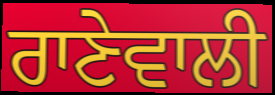
ਰਾਣੇਵਾਲੀ